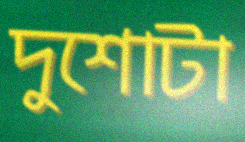
দুশোটা